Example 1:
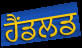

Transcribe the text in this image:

ਹੈਂਡਲਡ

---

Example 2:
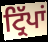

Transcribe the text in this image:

ਟ੍ਰਿੱਪਾਂ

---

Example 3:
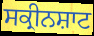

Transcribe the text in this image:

ਸਕ੍ਰੀਨਸ਼ਾਟ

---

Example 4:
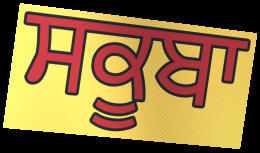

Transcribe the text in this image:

ਸਕੂਬਾ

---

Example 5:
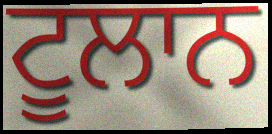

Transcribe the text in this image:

ਟੂਲਾਨ